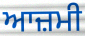
ਆਜ਼ਮੀ